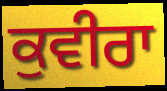
ਕੁਵੀਰਾ